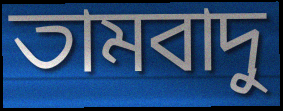
তামবাদু